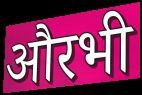
औरभी